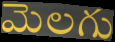
మెలగు